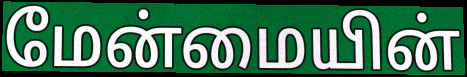
மேன்மையின்